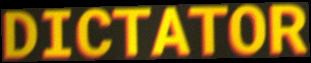
DICTATOR